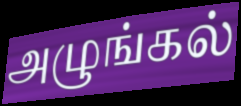
அழுங்கல்